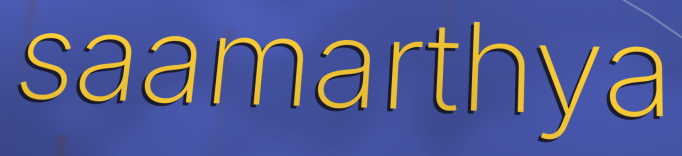
saamarthya